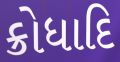
ક્રોધાદિ